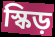
স্কিড়